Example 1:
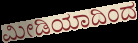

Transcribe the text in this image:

ಮೀಡಿಯಾದಿಂದ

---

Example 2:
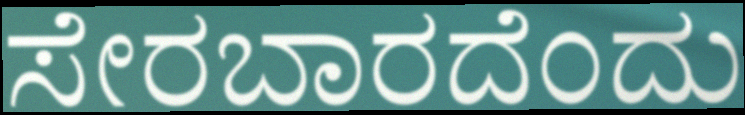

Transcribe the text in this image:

ಸೇರಬಾರದೆಂದು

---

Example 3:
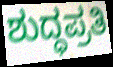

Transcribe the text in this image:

ಶುದ್ಧಪ್ರತಿ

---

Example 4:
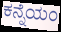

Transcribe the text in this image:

ಕನ್ನೆಯಂ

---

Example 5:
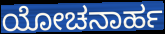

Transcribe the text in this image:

ಯೋಚನಾರ್ಹ